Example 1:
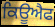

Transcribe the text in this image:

ਕਿਊਐਫ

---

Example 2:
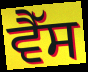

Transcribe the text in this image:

ਵੈੱਸ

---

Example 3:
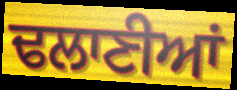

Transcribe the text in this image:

ਢਲਾਣੀਆਂ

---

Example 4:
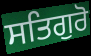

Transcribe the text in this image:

ਸਤਿਗੁਰੋ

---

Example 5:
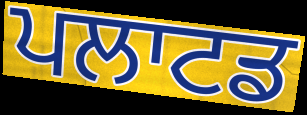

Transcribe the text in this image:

ਪਲਾਟਡ